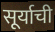
सूर्याची